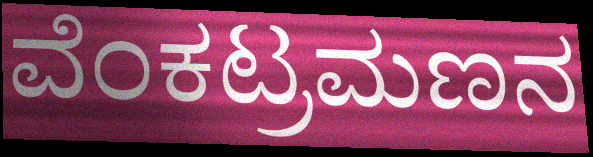
ವೆಂಕಟ್ರಮಣನ